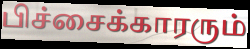
பிச்சைக்காரரும்